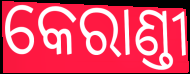
କେରାଣ୍ଡୀ